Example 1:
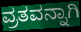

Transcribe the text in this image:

ವ್ರತವನ್ನಾಗಿ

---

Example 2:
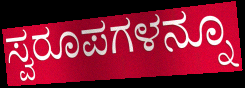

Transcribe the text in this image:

ಸ್ವರೂಪಗಳನ್ನೂ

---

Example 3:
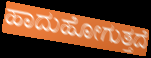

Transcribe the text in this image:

ಹಾದುಹೋಗುತ್ತದೆ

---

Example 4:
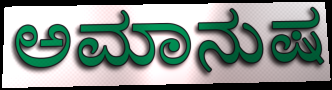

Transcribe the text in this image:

ಅಮಾನುಷ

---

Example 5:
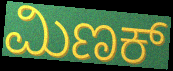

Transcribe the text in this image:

ಮಿಣಕ್